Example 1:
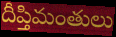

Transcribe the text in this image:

దీప్తిమంతులు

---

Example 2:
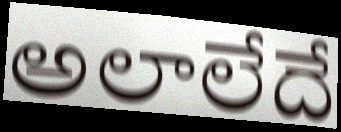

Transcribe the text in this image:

అలాలేదే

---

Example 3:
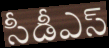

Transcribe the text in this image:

సీడీఎస్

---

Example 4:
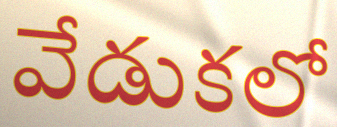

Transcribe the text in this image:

వేడుకలో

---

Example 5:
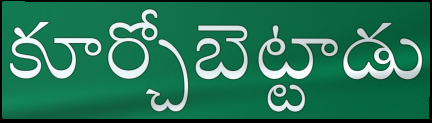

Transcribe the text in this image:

కూర్చోబెట్టాడు